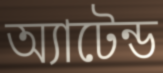
অ্যাটেন্ড